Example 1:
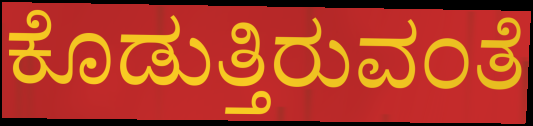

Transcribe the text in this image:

ಕೊಡುತ್ತಿರುವಂತೆ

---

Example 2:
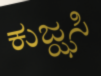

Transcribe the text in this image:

ಕುಜ್ಝಸಿ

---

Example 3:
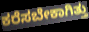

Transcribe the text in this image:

ಕರೆಸಬೇಕಾಗಿತ್ತು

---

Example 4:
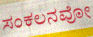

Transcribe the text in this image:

ಸಂಕಲನವೋ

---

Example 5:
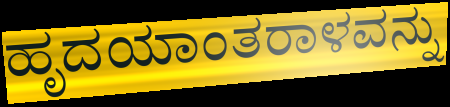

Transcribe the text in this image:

ಹೃದಯಾಂತರಾಳವನ್ನು